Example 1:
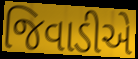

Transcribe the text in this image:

જિવાડીએ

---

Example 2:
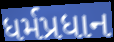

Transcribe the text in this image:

ધર્મપ્રધાન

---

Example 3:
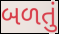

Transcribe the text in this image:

બળતું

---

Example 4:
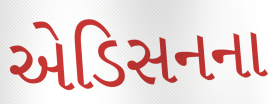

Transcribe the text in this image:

એડિસનના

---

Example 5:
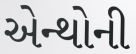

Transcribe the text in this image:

એન્થોની